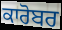
ਕਾਰੋਬਰ